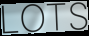
LOTS